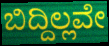
ಬಿದ್ದಿಲ್ಲವೇ